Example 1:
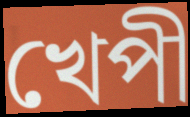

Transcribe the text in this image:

খেপী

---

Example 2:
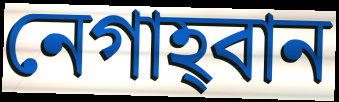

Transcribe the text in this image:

নেগাহ্‌বান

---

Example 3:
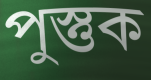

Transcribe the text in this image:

পুস্তুক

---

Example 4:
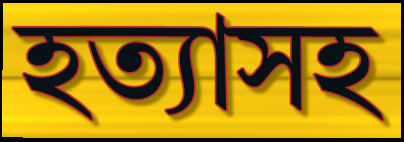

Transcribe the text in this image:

হত্যাসহ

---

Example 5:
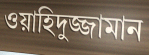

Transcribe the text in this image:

ওয়াহিদুজ্জামান